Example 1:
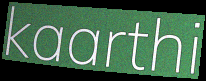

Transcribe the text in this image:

kaarthi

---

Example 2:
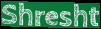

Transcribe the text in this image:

Shresht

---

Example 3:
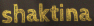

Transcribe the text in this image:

shaktina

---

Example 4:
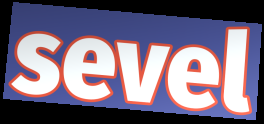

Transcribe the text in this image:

sevel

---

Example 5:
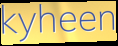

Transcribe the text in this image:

kyheen